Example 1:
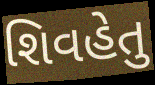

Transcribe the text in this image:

શિવહેતુ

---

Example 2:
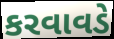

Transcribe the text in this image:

કરવાવડે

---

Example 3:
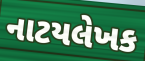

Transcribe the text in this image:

નાટયલેખક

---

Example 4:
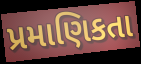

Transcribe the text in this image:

પ્રમાણિકતા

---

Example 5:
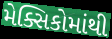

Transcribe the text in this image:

મેક્સિકોમાંથી